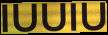
IUUIU